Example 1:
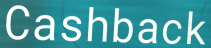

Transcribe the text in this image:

Cashback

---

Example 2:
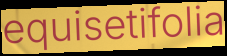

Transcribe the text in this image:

equisetifolia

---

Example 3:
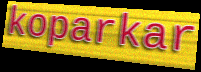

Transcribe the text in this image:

koparkar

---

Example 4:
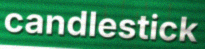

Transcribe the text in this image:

candlestick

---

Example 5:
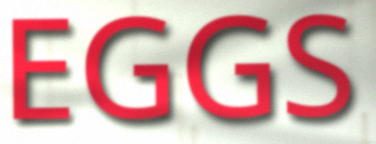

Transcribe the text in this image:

EGGS